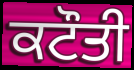
ਕਟੌਤੀ